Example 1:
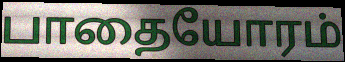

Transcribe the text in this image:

பாதையோரம்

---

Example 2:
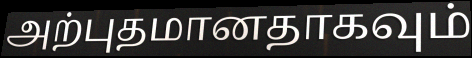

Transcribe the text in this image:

அற்புதமானதாகவும்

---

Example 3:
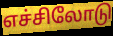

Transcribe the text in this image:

எச்சிலோடு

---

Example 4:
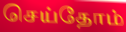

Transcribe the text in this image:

செய்தோம்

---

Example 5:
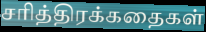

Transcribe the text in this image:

சரித்திரக்கதைகள்